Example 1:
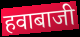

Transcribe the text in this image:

हवाबाजी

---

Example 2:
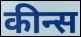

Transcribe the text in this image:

कीन्स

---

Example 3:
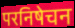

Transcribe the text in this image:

परनिषेचन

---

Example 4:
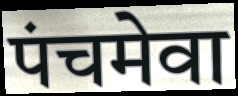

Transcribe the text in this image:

पंचमेवा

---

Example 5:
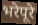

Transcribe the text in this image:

भरेपूरे